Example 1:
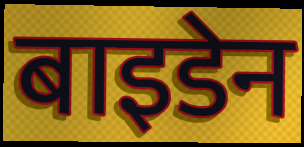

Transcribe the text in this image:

बाइडेन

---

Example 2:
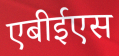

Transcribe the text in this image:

एबीईएस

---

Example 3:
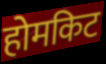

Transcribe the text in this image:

होमकिट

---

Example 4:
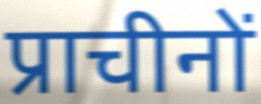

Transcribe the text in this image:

प्राचीनों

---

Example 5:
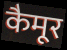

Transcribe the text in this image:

कैमूर